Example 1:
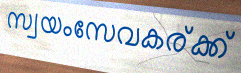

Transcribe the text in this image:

സ്വയംസേവകര്ക്ക്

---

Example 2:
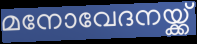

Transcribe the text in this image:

മനോവേദനയ്ക്ക്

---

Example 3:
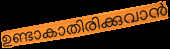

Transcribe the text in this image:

ഉണ്ടാകാതിരിക്കുവാൻ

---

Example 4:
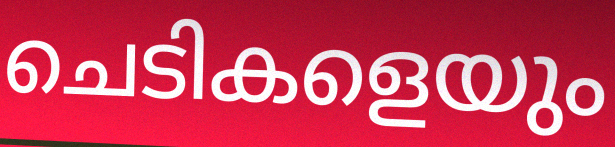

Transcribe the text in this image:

ചെടികളെയും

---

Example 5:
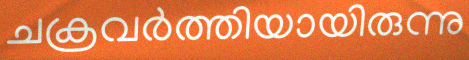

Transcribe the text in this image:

ചക്രവർത്തിയായിരുന്നു